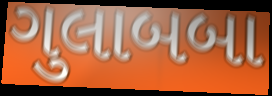
ગુલાબબા